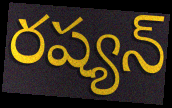
రష్యన్